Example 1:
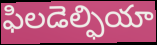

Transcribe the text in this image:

ఫిలడెల్ఫియా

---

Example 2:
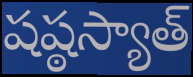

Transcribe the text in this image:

షష్ఠస్యాత్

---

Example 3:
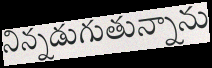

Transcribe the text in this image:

నిన్నడుగుతున్నాను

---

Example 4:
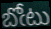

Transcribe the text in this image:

బోఁటు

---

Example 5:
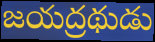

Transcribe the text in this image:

జయద్రథుడు